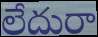
లేదురా